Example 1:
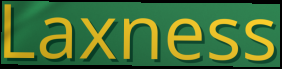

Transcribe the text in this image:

Laxness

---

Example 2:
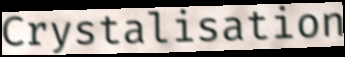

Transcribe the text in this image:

Crystalisation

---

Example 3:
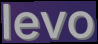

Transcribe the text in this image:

levo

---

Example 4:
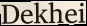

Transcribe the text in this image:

Dekhei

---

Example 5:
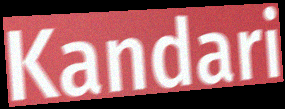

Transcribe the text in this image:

Kandari